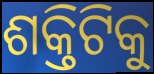
ଶକ୍ତିଟିକୁ